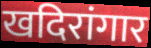
खदिरांगार